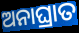
ଅନାଘ୍ରାତ